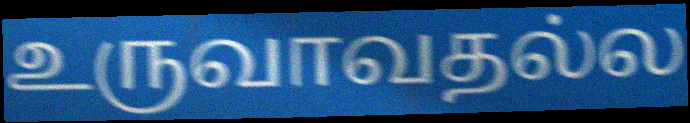
உருவாவதல்ல